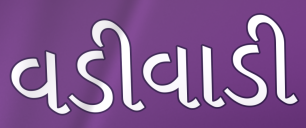
વડીવાડી